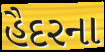
હૈદરના